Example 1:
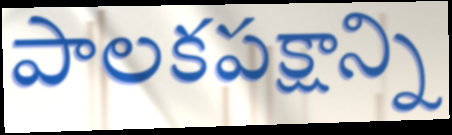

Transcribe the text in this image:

పాలకపక్షాన్ని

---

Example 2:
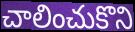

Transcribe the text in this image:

చాలించుకొని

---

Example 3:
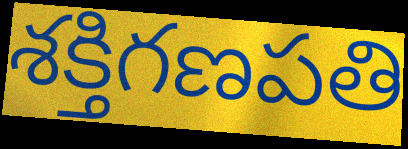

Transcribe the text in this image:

శక్తిగణపతి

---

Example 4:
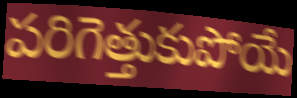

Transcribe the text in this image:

పరిగెత్తుకుపోయే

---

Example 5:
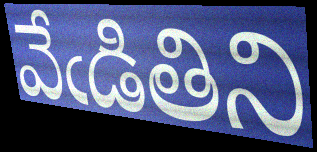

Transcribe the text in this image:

వేఁడితిని